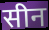
सीन